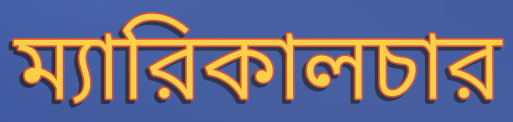
ম্যারিকালচার